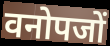
वनोपजों